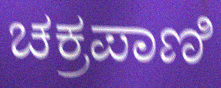
ಚಕ್ರಪಾಣಿ